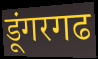
डूंगरगढ